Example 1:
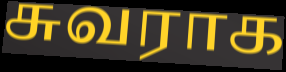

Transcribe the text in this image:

சுவராக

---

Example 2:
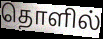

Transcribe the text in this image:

தொளில்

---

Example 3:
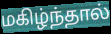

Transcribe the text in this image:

மகிழ்ந்தால்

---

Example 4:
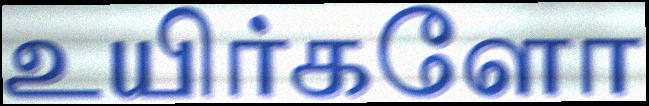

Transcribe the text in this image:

உயிர்களோ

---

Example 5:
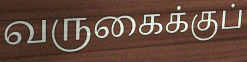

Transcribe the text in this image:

வருகைக்குப்